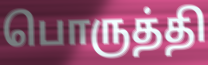
பொருத்தி